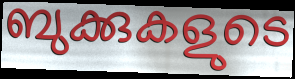
ബുക്കുകളുടെ